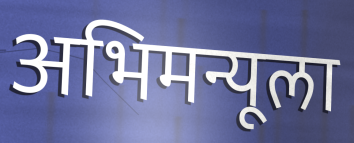
अभिमन्यूला